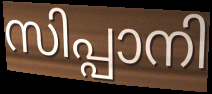
സിപ്പാനി